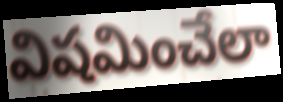
విషమించేలా